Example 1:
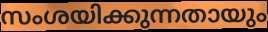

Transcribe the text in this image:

സംശയിക്കുന്നതായും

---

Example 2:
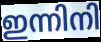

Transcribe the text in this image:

ഇന്നിനി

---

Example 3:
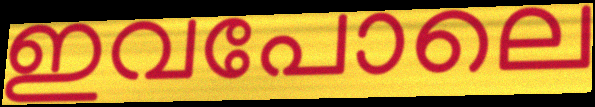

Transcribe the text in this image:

ഇവപോലെ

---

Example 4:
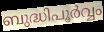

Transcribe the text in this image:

ബുദ്ധിപൂർവ്വം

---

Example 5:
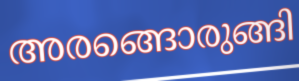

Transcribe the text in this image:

അരങ്ങൊരുങ്ങി